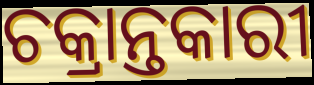
ଚକ୍ରାନ୍ତକାରୀ